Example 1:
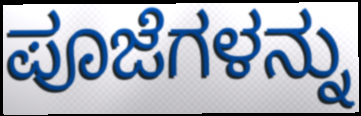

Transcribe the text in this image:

ಪೂಜೆಗಳನ್ನು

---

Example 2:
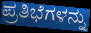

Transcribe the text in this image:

ಪ್ರತಿಭೆಗಳನ್ನು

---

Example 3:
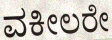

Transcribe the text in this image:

ವಕೀಲರೇ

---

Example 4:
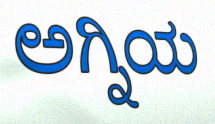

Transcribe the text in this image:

ಅಗ್ನಿಯ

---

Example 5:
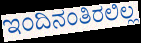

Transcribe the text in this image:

ಇಂದಿನಂತಿರಲಿಲ್ಲ